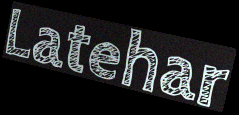
Latehar